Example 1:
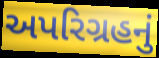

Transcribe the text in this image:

અપરિગ્રહનું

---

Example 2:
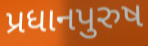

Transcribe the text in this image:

પ્રધાનપુરુષ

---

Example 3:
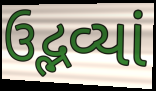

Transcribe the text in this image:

ઉદ્ભવ્યાં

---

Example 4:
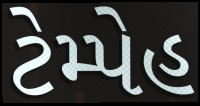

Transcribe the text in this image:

ટેમ્પેહ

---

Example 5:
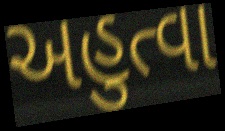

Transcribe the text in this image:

અહુત્વા